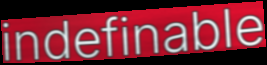
indefinable